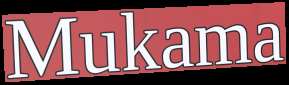
Mukama